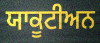
ਯਾਕੂਟੀਅਨ